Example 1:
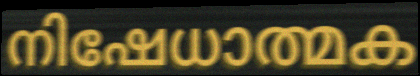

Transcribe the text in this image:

നിഷേധാത്മക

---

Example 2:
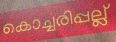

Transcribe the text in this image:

കൊച്ചരിപ്പല്ല്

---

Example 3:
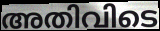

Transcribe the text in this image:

അതിവിടെ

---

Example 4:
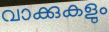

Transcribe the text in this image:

വാക്കുകളും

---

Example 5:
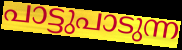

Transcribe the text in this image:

പാട്ടുപാടുന്ന